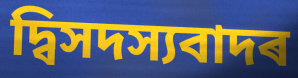
দ্বিসদস্যবাদৰ